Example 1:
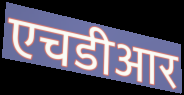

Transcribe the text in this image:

एचडीआर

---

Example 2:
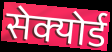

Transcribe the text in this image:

सेक्योर्ड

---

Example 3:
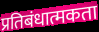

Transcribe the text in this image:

प्रतिबंधात्मकता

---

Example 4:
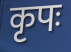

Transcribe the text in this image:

कृपः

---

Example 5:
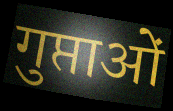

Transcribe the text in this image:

गुप्ताओं